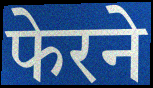
फेरने